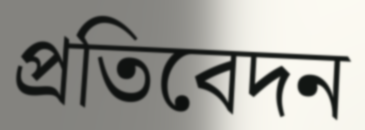
প্ৰতিবেদন